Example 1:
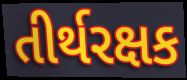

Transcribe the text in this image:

તીર્થરક્ષક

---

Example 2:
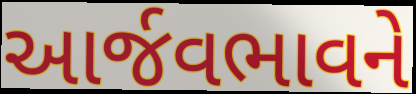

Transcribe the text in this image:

આર્જવભાવને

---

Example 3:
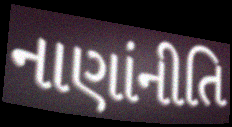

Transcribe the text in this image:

નાણાંનીતિ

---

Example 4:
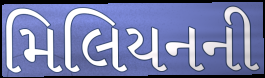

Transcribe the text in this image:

મિલિયનની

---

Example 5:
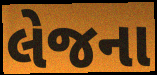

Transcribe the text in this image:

લેજના